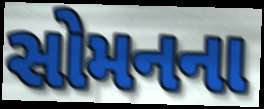
સોમનના